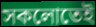
সকলোতেই